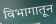
विभागातून